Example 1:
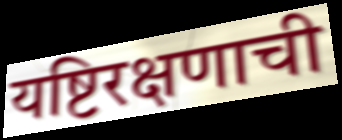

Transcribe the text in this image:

यष्टिरक्षणाची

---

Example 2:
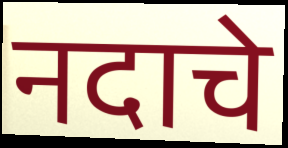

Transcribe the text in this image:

नदाचे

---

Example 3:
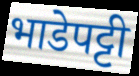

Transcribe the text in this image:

भाडेपट्टी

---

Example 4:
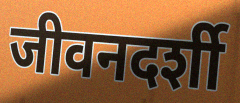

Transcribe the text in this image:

जीवनदर्शी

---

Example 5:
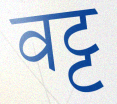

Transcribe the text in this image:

वट्ट